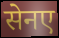
सेनए